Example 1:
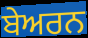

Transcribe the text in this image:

ਬੇਅਰਨ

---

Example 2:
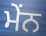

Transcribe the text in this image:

ਮੇਂਨ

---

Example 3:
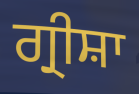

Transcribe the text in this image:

ਗ੍ਰੀਸ਼ਾ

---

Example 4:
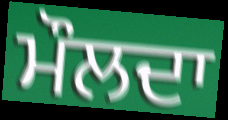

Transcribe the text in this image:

ਮੌਲਦਾ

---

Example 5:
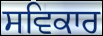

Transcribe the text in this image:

ਸਵਿਕਾਰ